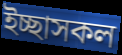
ইচ্ছাসকল